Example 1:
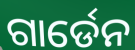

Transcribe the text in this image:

ଗାର୍ଡେନ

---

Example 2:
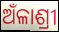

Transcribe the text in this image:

ଅଁଳାଶ୍ରୀ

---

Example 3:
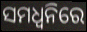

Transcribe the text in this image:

ସମଧ୍ୱନିରେ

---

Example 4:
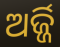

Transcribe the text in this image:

ଅର୍ଜ୍ଜି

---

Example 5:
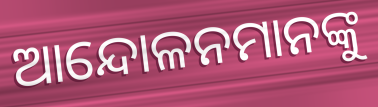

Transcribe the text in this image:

ଆନ୍ଦୋଳନମାନଙ୍କୁ